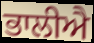
ਭਾਲੀਐ